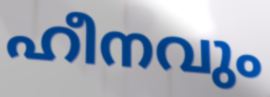
ഹീനവും